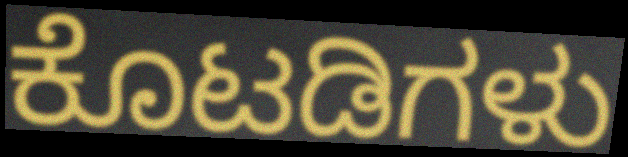
ಕೊಟಡಿಗಳು